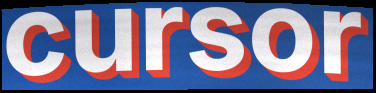
cursor